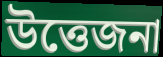
উত্তেজনা